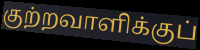
குற்றவாளிக்குப்